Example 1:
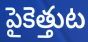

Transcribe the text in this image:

పైకెత్తుట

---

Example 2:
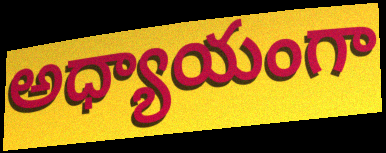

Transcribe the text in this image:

అధ్యాయంగా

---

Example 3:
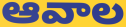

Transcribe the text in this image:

ఆవాల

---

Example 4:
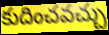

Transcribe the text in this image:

కుదించవచ్చు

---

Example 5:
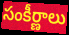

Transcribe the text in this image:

సంకీర్ణాలు